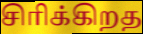
சிரிக்கிறத